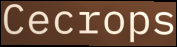
Cecrops